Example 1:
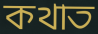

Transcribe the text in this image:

কথাত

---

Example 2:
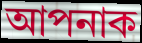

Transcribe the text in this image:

আপনাক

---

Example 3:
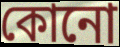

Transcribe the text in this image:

কোনো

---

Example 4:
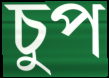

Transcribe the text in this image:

চুপ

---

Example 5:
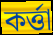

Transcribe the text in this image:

কৰ্ত্তা